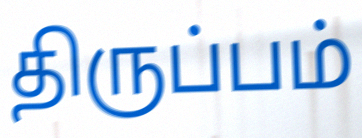
திருப்பம்